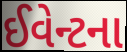
ઈવેન્ટના